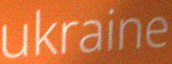
ukraine